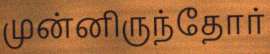
முன்னிருந்தோர்